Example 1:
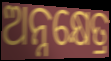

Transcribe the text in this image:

ଅନ୍ନକ୍ଷେତ୍ର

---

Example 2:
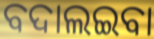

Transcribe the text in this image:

ବଦାଲଇବା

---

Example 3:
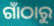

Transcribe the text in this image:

ଗାଁଠାରୁ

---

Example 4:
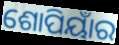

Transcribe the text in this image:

ଶୋପିୟାଁର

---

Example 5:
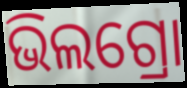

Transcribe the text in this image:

ଭିଲଗ୍ରୋ